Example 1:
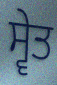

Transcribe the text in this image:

ਸ੍ਵੇਤ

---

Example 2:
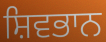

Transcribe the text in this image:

ਸ਼ਿਵਭਾਨ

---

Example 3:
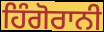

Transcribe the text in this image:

ਹਿੰਗੋਰਾਨੀ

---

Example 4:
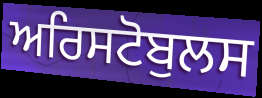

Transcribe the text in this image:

ਅਰਿਸਟੋਬੁਲਸ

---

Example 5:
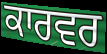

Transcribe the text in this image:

ਕਾਰਵਰ